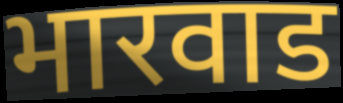
भारवाड